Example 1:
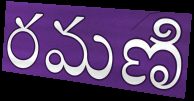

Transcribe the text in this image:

రమణి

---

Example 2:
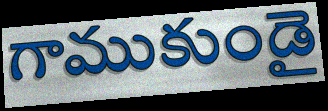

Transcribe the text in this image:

గాముకుండై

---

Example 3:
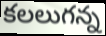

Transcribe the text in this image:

కలలుగన్న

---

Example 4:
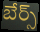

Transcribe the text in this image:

బేర్స్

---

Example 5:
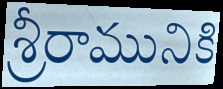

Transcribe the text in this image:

శ్రీరామునికి